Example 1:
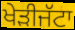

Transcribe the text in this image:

ਖੇੜੀਜੱਟਾ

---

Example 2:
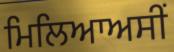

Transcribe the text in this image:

ਮਿਲਿਆਅਸੀਂ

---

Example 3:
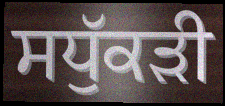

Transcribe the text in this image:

ਸਧੁੱਕੜੀ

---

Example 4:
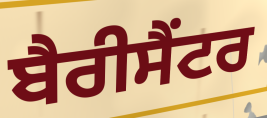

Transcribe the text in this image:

ਬੈਰੀਸੈਂਟਰ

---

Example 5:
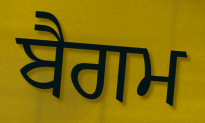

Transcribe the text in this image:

ਬੈਗਮ